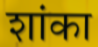
शांका